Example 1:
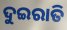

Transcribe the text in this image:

ଦୁଇରାତି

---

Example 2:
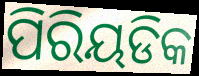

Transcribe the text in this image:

ପିରିୟଡିକ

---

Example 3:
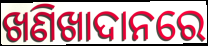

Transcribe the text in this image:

ଖଣିଖାଦାନରେ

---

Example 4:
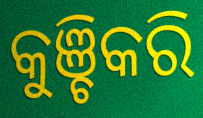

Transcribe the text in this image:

କୁଞ୍ଚିକରି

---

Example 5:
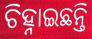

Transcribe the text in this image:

ଚିହ୍ନାଇଛନ୍ତି